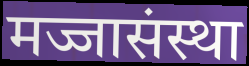
मज्जासंस्था